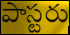
పాస్టరు